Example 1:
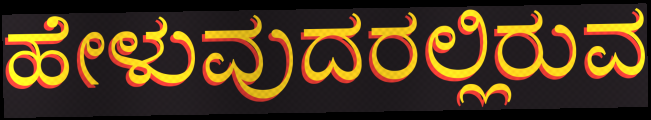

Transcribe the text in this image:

ಹೇಳುವುದರಲ್ಲಿರುವ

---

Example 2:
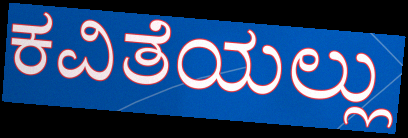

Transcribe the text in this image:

ಕವಿತೆಯಲ್ಲು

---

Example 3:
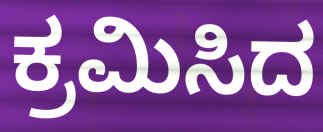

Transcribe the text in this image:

ಕ್ರಮಿಸಿದ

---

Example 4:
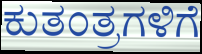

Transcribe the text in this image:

ಕುತಂತ್ರಗಳಿಗೆ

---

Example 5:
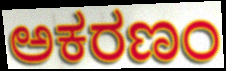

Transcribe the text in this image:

ಅಕರಣಂ